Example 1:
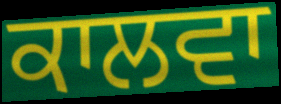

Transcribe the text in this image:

ਕਾਲਵਾ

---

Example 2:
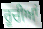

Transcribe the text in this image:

ਰੂਚੀਆਂ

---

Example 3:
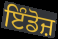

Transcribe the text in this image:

ਇੰਡੋਜ਼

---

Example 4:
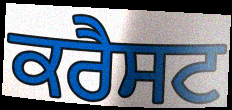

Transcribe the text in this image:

ਕਰੈਸਟ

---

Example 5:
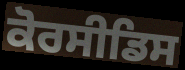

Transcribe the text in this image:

ਕੋਰਸੀਡਿਸ